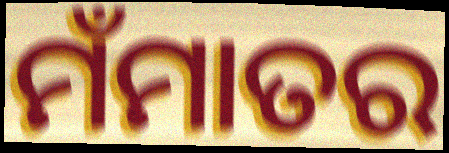
ମଁମାତର